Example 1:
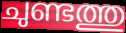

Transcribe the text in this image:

ചുണ്ടത്തു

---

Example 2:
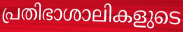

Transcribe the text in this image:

പ്രതിഭാശാലികളുടെ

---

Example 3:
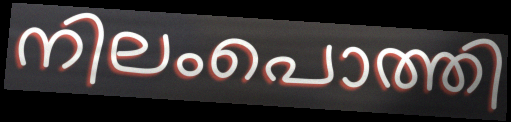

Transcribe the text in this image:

നിലംപൊത്തി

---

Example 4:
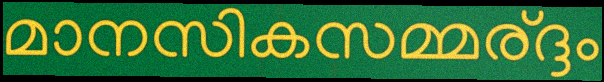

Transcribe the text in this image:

മാനസികസമ്മര്ദ്ദം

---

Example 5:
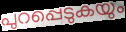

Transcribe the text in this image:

പുറപ്പെടുകയും